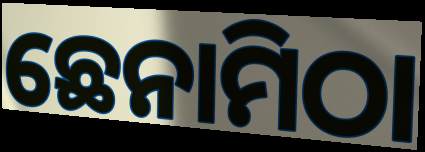
ଛେନାମିଠା